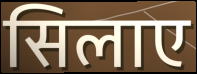
सिलाए